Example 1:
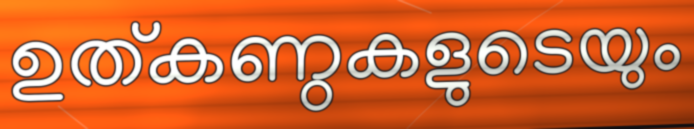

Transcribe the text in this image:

ഉത്കണ്ഠകളുടെയും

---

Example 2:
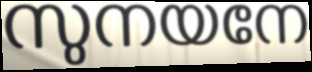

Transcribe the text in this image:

സുനയനേ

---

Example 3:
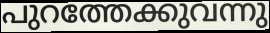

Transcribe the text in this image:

പുറത്തേക്കുവന്നു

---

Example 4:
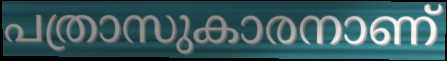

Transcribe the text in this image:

പത്രാസുകാരനാണ്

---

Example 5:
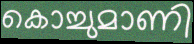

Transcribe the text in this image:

കൊച്ചുമാണി